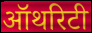
ऑथरिटी